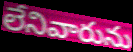
లేనివారును